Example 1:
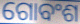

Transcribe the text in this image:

ଗୋବଂଶ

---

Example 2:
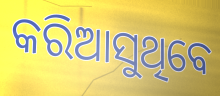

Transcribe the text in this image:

କରିଆସୁଥିବେ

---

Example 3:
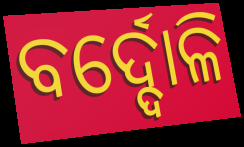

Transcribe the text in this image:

ବର୍ଦ୍ଦୋଳି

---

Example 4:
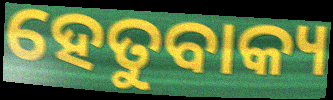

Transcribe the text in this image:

ହେତୁବାକ୍ୟ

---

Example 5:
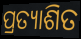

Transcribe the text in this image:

ପ୍ରତ୍ୟାଶିତ